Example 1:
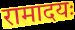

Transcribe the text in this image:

रामादयः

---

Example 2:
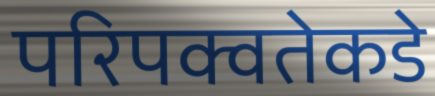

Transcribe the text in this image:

परिपक्वतेकडे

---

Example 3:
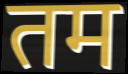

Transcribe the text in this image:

तम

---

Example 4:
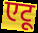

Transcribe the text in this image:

एटू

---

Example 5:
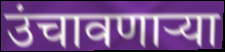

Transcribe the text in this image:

उंचावणाऱ्या